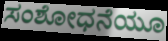
ಸಂಶೋಧನೆಯೂ